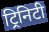
ट्रिनिटी